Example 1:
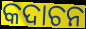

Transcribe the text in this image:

କଦାଚନ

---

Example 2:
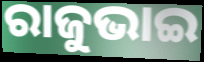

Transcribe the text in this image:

ରାଜୁଭାଇ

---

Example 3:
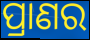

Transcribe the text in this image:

ପ୍ରାଣର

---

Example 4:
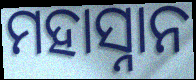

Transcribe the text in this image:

ମହାସ୍ନାନ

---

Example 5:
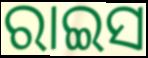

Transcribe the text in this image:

ରାଇସ